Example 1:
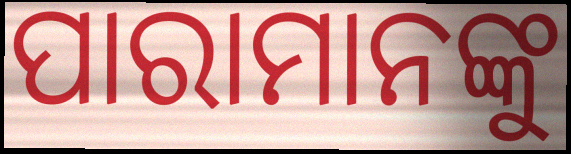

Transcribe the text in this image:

ପାରାମାନଙ୍କୁ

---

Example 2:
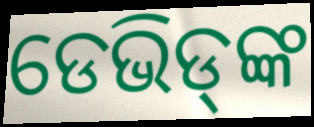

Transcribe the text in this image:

ଡେଭିଡ୍‌ଙ୍କ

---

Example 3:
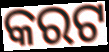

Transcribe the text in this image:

କରଟ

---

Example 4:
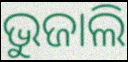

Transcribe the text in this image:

ଭୁଜାଲି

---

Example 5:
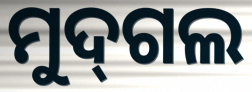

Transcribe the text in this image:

ମୁଦ୍‌ଗଲ